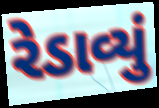
રેડાવ્યું